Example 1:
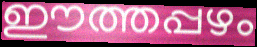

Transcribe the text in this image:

ഈത്തപ്പഴം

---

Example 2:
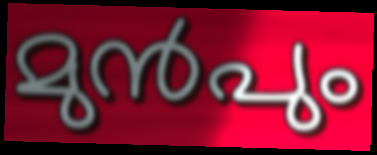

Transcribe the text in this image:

മുൻപും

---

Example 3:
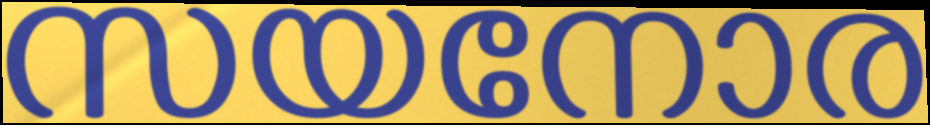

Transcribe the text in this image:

സയനോര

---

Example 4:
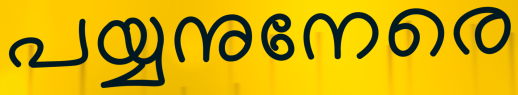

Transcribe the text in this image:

പയ്യനുനേരെ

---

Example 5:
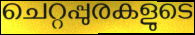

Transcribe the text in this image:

ചെറ്റപ്പുരകളുടെ